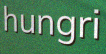
hungri